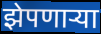
झेपणार्‍या